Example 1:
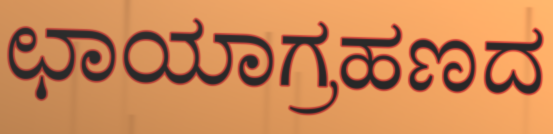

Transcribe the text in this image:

ಛಾಯಾಗ್ರಹಣದ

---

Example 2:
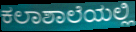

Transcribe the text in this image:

ಕಲಾಶಾಲೆಯಲ್ಲಿ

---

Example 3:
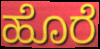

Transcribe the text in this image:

ಹೊರೆ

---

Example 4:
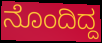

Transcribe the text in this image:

ನೊಂದಿದ್ದ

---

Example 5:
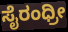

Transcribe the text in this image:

ಸೈರಂಧ್ರೀ